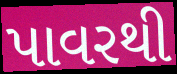
પાવરથી